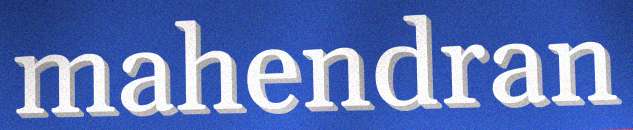
mahendran